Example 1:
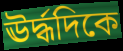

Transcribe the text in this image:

ঊর্দ্ধদিকে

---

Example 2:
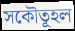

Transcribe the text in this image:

সকৌতূহল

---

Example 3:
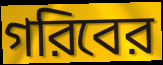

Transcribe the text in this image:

গরিবের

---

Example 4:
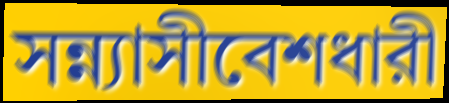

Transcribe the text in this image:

সন্ন্যাসীবেশধারী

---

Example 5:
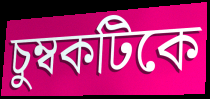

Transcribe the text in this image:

চুম্বকটিকে